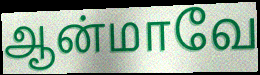
ஆன்மாவே